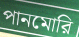
পানমোরি